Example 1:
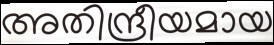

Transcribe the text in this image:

അതിന്ദ്രീയമായ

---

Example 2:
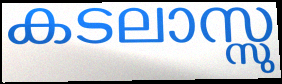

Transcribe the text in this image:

കടലാസ്സു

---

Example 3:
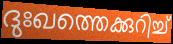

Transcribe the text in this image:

ദുഃഖത്തെക്കുറിച്ച്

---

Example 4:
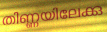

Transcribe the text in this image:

തിണ്ണയിലേക്കു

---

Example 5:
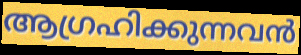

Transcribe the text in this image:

ആഗ്രഹിക്കുന്നവൻ